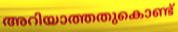
അറിയാത്തതുകൊണ്ട്